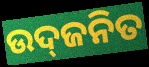
ଉଦ୍‌ଜନିତ